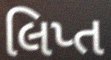
લિપ્ત